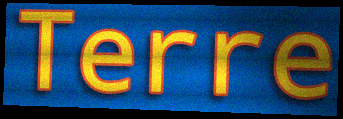
Terre